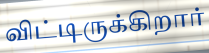
விட்டிருக்கிறார்